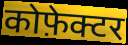
कोफ़ेक्टर